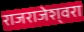
राजराजेश्वरा